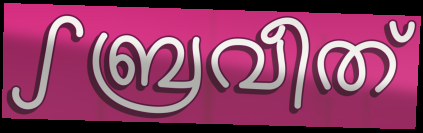
ഽബ്രവീത്